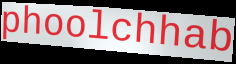
phoolchhab